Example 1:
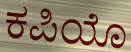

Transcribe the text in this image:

ಕಪಿಯೊ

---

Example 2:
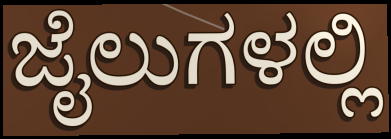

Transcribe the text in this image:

ಜೈಲುಗಳಲ್ಲಿ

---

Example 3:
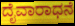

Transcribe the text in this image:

ದೈವಾರಾಧನೆ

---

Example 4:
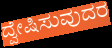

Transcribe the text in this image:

ದ್ವೇಷಿಸುವುದರ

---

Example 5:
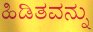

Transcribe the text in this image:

ಹಿಡಿತವನ್ನು